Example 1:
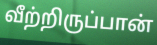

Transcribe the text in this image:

வீற்றிருப்பான்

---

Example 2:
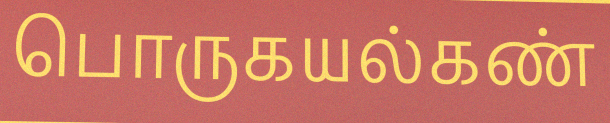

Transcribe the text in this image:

பொருகயல்கண்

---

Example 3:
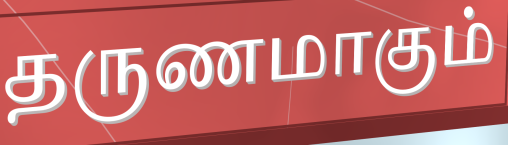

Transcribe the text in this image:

தருணமாகும்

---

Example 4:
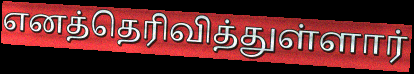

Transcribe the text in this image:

எனத்தெரிவித்துள்ளார்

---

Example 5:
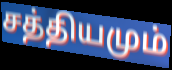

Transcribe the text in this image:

சத்தியமும்